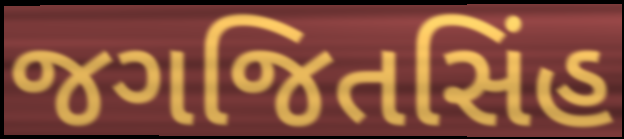
જગજિતસિંહ